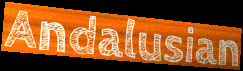
Andalusian